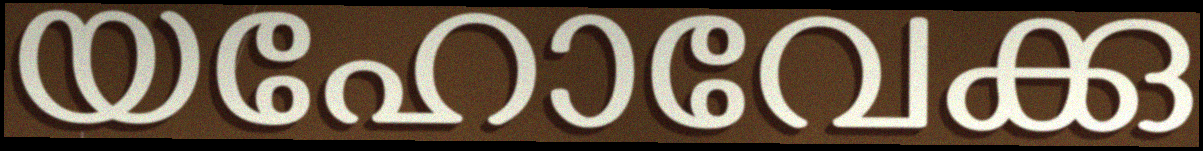
യഹോവേക്കു